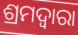
ଶ୍ରମଦ୍ଵାରା